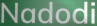
Nadodi